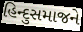
હિન્દુસમાજને